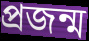
প্রজন্ম